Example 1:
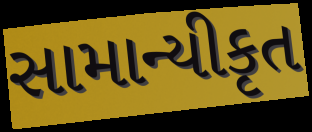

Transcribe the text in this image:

સામાન્યીકૃત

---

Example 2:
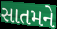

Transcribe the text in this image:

સાતમને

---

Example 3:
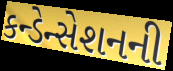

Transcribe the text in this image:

કન્ડેન્સેશનની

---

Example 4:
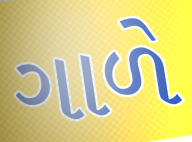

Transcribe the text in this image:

ગાળે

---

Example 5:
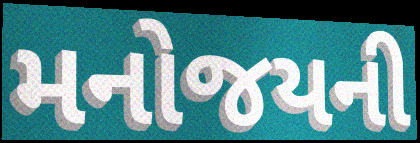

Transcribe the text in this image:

મનોજયની